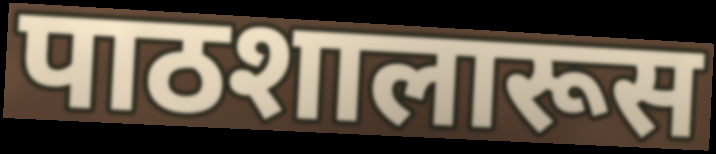
पाठशालारूस